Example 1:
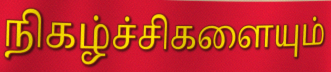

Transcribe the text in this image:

நிகழ்ச்சிகளையும்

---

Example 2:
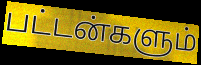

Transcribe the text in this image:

பட்டன்களும்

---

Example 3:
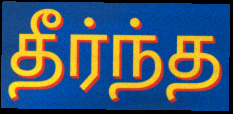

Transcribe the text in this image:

தீர்ந்த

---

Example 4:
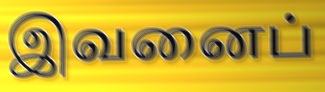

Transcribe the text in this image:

இவனைப்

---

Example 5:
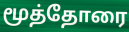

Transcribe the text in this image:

மூத்தோரை